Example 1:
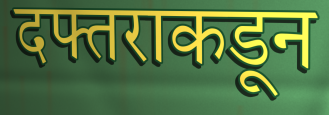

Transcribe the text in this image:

दफ्तराकडून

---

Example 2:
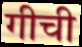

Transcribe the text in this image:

गीची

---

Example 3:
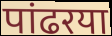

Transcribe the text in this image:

पांढरया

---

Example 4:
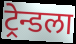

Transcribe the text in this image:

ट्रेन्डला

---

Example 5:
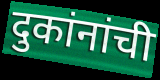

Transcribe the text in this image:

दुकांनांची